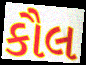
કૌલ